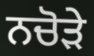
ਨਚੋੜੇ